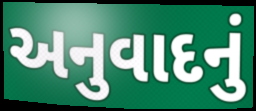
અનુવાદનું